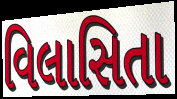
વિલાસિતા